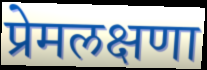
प्रेमलक्षणा